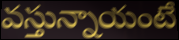
వస్తున్నాయంటే